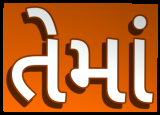
તેમાં